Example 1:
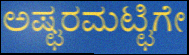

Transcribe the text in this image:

ಅಷ್ಟರಮಟ್ಟಿಗೇ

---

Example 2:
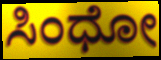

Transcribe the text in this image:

ಸಿಂಧೋ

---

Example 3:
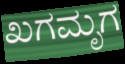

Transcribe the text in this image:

ಖಗಮೃಗ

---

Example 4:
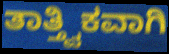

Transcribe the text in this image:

ತಾತ್ತ್ವಿಕವಾಗಿ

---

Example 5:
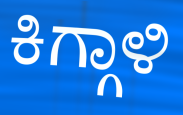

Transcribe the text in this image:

ಕಿಗ್ಗಾಳಿ